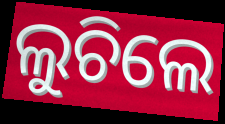
ଲୁଚିଲେ